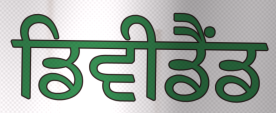
ਡਿਵੀਡੈਂਡ